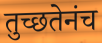
तुच्छतेनंच